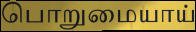
பொறுமையாய்